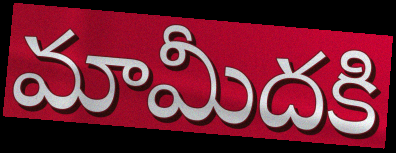
మామీదకి